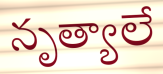
నృత్యాలే